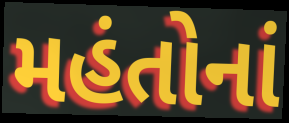
મહંતોનાં